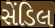
સેંડિલ